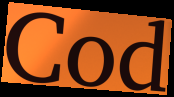
Cod